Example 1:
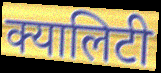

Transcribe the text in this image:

क्यालिटी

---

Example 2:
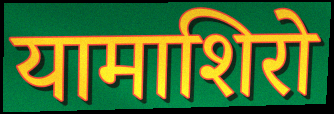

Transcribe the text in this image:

यामाशिरो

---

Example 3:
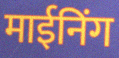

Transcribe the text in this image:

माईनिंग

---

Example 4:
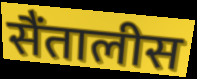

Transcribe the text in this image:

सैंतालीस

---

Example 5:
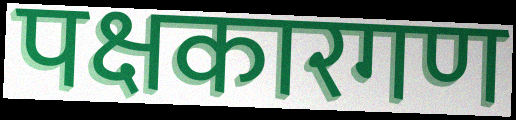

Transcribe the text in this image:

पक्षकारगण